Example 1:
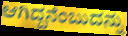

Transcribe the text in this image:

ಆಗಿದ್ದನೆಂಬುದನ್ನು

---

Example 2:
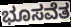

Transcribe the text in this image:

ಭೂಸವೆತ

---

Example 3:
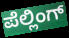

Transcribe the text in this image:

ಪೆಲ್ಲಿಂಗ್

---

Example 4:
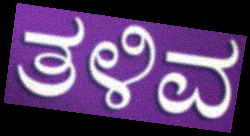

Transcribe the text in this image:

ತಳಿವ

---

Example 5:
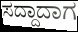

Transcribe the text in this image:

ಸದ್ದಾದಾಗ